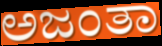
ಅಜಂತಾ